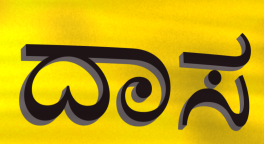
ದಾಸ